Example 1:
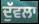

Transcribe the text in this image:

ਦੁੱਵਲਾ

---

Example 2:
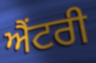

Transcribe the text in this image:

ਐਂਟਰੀ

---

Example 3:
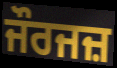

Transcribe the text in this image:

ਜੌਰਜਜ਼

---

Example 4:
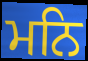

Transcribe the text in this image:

ਮਨਿ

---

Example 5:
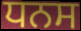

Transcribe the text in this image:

ਧਨਸ